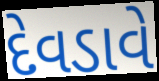
દેવડાવે